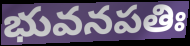
భువనపతిః